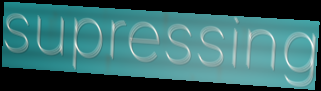
supressing